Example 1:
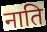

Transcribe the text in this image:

नाति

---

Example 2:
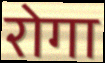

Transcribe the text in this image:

रोगा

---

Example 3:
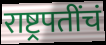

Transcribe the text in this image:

राष्ट्रपतींचं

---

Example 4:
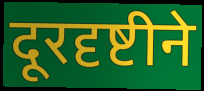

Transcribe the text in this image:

दूरदृष्टीने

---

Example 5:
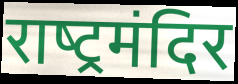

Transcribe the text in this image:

राष्ट्रमंदिर